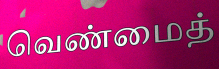
வெண்மைத்